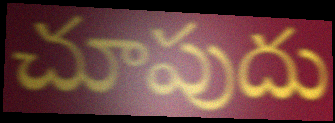
చూపుదు